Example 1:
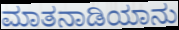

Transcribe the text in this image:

ಮಾತನಾಡಿಯಾನು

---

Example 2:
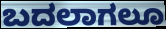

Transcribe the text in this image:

ಬದಲಾಗಲೂ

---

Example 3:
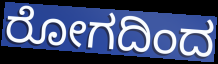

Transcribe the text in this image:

ರೋಗದಿಂದ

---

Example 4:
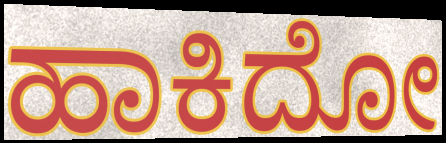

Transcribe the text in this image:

ಹಾಕಿದೋ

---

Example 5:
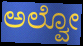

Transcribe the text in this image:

ಅಲ್ವೋ